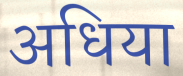
अधिया